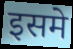
इसमे